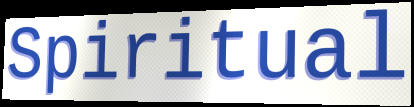
Spiritual